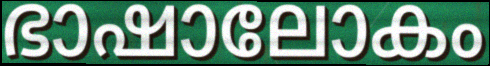
ഭാഷാലോകം